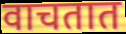
वाचतात